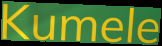
Kumele